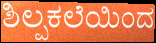
ಶಿಲ್ಪಕಲೆಯಿಂದ